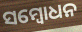
ସମ୍ବୋଧନ